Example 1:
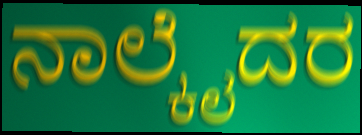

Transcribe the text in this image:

ನಾಲ್ಕೈದರ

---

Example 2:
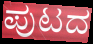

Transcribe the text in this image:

ಪುಟದ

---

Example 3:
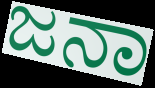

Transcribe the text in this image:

ಜನಾ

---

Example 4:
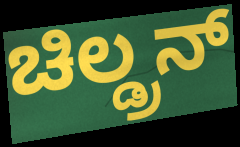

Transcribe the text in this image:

ಚಿಲ್ಡ್ರನ್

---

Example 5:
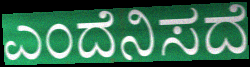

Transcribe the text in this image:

ಎಂದೆನಿಸದೆ